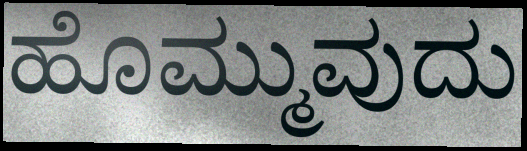
ಹೊಮ್ಮುವುದು